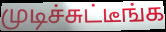
முடிச்சுட்டீங்க